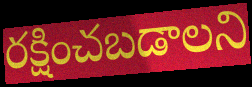
రక్షించబడాలని